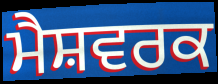
ਮੈਸ਼ਵਰਕ